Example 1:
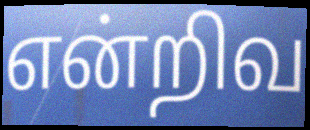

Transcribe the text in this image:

என்றிவ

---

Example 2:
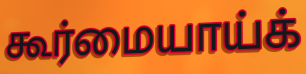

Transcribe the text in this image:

கூர்மையாய்க்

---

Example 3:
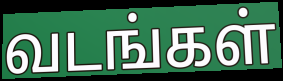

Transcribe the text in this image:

வடங்கள்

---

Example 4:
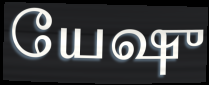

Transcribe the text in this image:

யேஷு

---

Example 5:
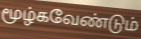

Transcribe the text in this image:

மூழ்கவேண்டும்